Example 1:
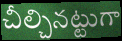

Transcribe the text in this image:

చీల్చినట్టుగా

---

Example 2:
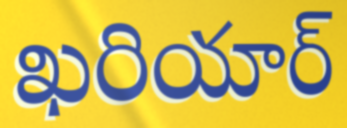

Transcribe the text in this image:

ఖరియార్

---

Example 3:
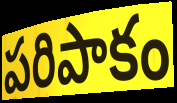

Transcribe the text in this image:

పరిపాకం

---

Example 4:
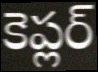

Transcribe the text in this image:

కెప్లర్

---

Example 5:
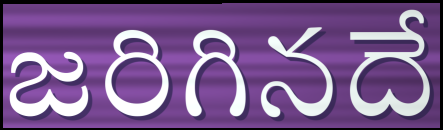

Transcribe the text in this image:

జరిగినదే